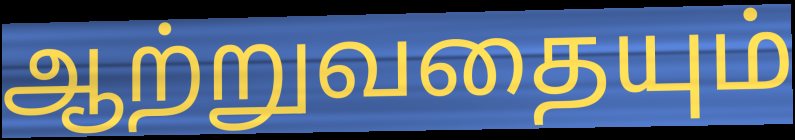
ஆற்றுவதையும்